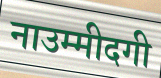
नाउम्मीदगी